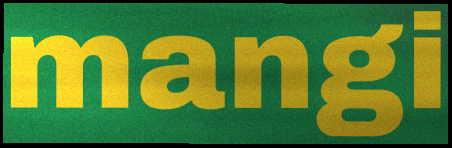
mangi